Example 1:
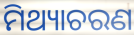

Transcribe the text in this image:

ମିଥ୍ୟାଚରଣ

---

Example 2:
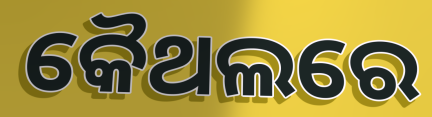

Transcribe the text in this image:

କୈଥଲରେ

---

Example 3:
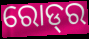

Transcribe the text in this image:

ରୋଡ୍‌ର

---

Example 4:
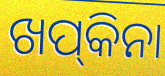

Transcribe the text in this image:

ଖପ୍‍କିନା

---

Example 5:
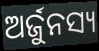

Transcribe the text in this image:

ଅର୍ଜୁନସ୍ୟ